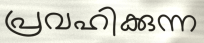
പ്രവഹിക്കുന്ന